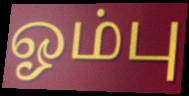
ஓம்பு